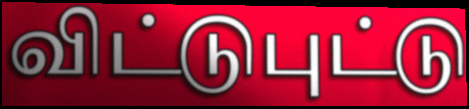
விட்டுபுட்டு